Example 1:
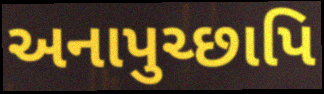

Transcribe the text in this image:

અનાપુચ્છાપિ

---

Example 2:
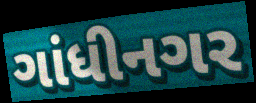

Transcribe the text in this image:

ગાંધીનગર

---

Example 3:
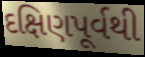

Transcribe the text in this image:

દક્ષિણપૂર્વથી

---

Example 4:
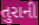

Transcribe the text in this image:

તુરાની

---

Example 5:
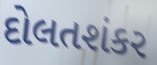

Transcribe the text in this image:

દોલતશંકર